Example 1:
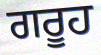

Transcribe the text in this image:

ਗਰੂਹ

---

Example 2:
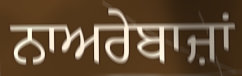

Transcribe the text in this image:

ਨਾਅਰੇਬਾਜ਼ਾਂ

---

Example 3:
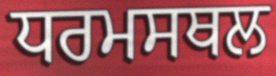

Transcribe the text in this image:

ਧਰਮਸਥਲ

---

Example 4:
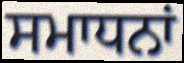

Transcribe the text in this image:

ਸਮਾਧਨਾਂ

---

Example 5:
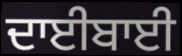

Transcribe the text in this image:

ਦਾਈਬਾਈ